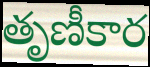
తృణీకార